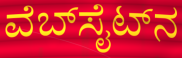
ವೆಬ್‍ಸೈಟ್‍ನ